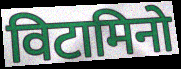
विटामिनो